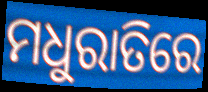
ମଧୁରାତିରେ